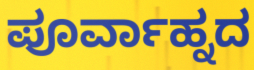
ಪೂರ್ವಾಹ್ನದ